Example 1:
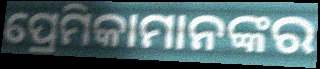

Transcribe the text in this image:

ପ୍ରେମିକାମାନଙ୍କର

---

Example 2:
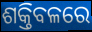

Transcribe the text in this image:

ଶକ୍ତିବଳରେ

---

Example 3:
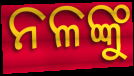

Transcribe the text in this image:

ନଳଙ୍କୁ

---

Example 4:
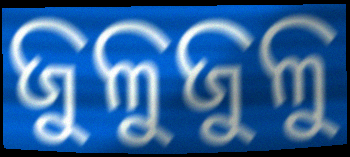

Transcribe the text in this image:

ଜୁଳୁଜୁଳୁ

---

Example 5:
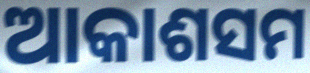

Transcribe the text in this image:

ଆକାଶସମ